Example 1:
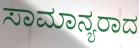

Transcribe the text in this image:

ಸಾಮಾನ್ಯರಾದ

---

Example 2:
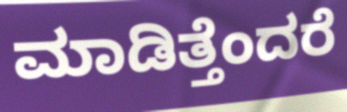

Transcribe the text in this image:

ಮಾಡಿತ್ತೆಂದರೆ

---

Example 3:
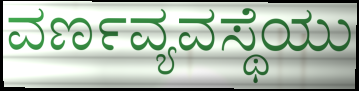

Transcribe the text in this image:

ವರ್ಣವ್ಯವಸ್ಥೆಯು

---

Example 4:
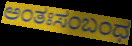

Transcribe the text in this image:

ಅಂತಃಸಂಬಂಧ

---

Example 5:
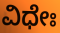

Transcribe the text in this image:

ವಿಧೇಃ